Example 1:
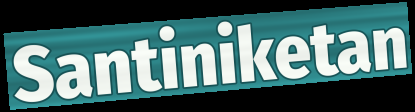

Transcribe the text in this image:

Santiniketan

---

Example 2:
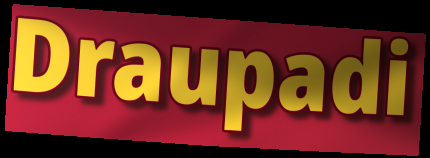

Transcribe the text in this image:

Draupadi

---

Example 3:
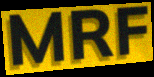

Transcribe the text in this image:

MRF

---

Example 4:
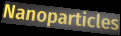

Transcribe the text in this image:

Nanoparticles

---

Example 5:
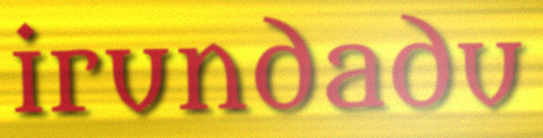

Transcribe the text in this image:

irundadu